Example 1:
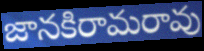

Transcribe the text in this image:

జానకిరామరావు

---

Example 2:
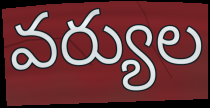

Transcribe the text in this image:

వర్యుల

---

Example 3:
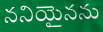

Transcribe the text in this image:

ననియైనను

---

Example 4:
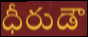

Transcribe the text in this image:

ధీరుడౌ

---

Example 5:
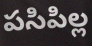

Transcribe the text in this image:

పసిపిల్ల